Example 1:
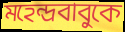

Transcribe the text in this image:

মহেন্দ্রবাবুকে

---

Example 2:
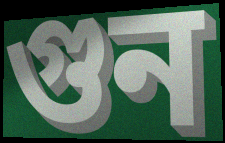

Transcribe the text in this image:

গুন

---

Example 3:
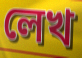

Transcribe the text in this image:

লেখ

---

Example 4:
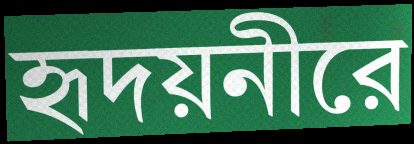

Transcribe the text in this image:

হৃদয়নীরে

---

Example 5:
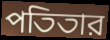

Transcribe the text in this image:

পতিতার